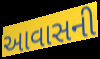
આવાસની